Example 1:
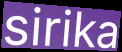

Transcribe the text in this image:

sirika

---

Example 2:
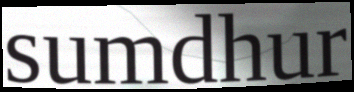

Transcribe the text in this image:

sumdhur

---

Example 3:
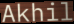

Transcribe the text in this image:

Akhil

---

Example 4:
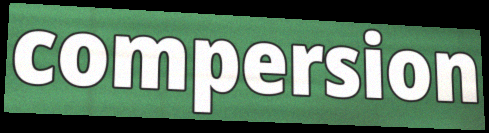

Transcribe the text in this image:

compersion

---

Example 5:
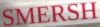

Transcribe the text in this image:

SMERSH